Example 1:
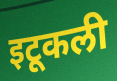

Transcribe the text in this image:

इटूकली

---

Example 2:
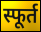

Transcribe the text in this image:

स्फूर्त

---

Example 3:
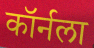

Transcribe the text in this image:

कॉर्नला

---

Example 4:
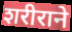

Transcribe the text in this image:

शरीराने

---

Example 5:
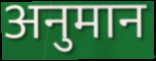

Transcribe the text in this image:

अनुमान